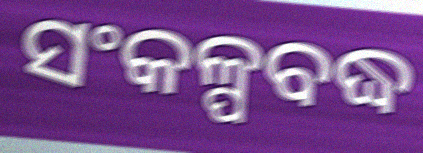
ସଂକଳ୍ପବଦ୍ଧ